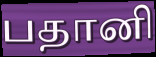
பதானி